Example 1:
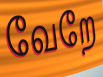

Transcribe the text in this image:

வேறே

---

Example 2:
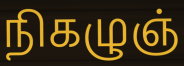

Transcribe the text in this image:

நிகழுஞ்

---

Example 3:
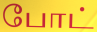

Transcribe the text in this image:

போட்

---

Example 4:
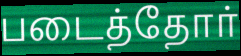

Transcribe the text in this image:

படைத்தோர்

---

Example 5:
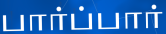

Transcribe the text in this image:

பார்ப்பார்